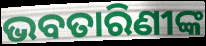
ଭବତାରିଣୀଙ୍କ